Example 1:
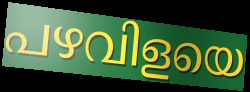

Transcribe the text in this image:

പഴവിളയെ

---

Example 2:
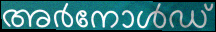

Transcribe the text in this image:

അർനോൾഡ്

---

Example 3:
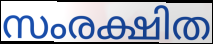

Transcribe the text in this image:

സംരക്ഷിത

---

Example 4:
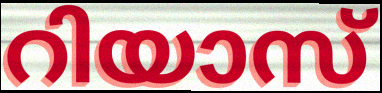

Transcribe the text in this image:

റിയാസ്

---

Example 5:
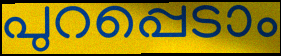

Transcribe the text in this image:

പുറപ്പെടാം